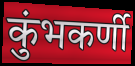
कुंभकर्णी